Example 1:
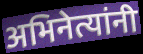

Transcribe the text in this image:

अभिनेत्यांनी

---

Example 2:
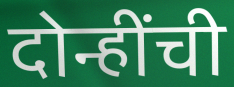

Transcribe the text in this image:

दोन्हींची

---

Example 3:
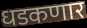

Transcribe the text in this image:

धडकणार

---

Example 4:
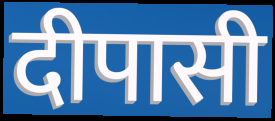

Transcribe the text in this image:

दीपासी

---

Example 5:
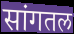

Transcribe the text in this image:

सांगतल